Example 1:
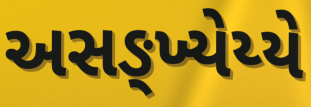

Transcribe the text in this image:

અસઙ્ખ્યેય્યે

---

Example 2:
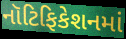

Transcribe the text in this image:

નૉટિફિકેશનમાં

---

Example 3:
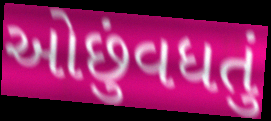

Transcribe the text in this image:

ઓછુંવધતું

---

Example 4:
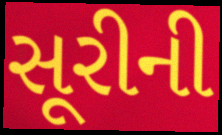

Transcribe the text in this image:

સૂરીની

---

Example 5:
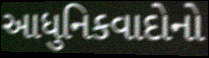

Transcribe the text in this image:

આધુનિકવાદોનો